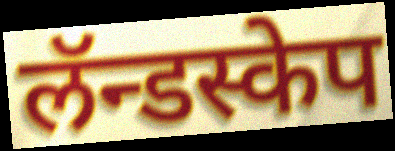
लॅन्डस्केप